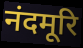
नंदमूरि